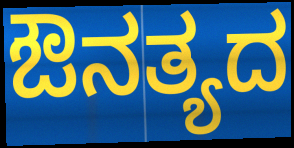
ಔನತ್ಯದ